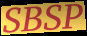
SBSP